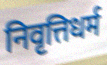
निवृत्तिधर्म